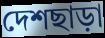
দেশছাড়া